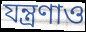
যন্ত্রণাও